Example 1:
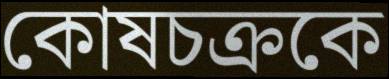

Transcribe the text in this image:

কোষচক্রকে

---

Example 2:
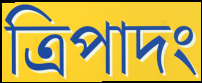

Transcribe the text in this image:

ত্রিপাদং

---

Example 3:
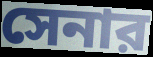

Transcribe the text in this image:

সেনার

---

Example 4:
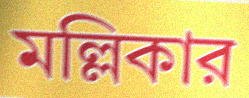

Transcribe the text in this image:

মল্লিকার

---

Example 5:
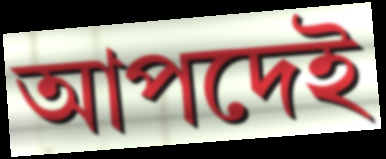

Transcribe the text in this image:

আপদেই